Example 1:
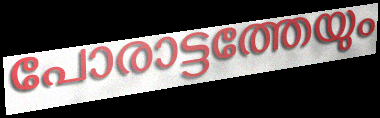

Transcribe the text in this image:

പോരാട്ടത്തേയും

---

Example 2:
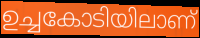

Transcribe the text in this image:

ഉച്ചകോടിയിലാണ്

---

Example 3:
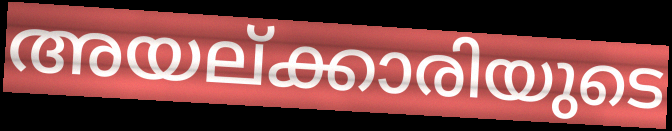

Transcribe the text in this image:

അയല്ക്കാരിയുടെ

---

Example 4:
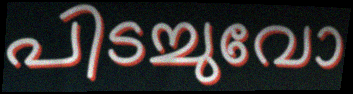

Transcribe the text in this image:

പിടച്ചുവോ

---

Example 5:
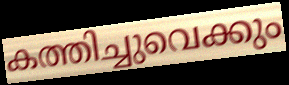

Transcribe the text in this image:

കത്തിച്ചുവെക്കും